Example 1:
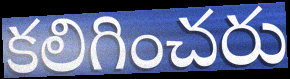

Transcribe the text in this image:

కలిగించరు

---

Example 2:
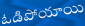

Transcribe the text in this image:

ఓడిపోయాయి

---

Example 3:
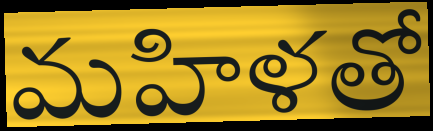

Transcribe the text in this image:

మహిళతో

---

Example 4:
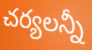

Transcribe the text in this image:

చర్యలన్నీ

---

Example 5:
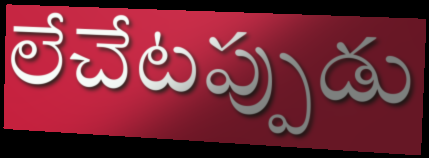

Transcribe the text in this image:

లేచేటప్పుడు